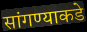
सांगण्याकडे